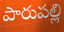
పారుపల్లి